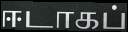
ஈடாகப்